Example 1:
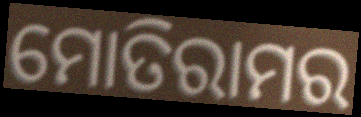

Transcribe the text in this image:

ମୋତିରାମର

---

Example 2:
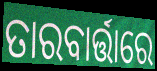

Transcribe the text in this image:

ତାରବାର୍ତ୍ତାରେ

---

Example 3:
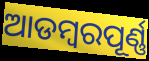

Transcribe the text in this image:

ଆଡମ୍ବରପୂର୍ଣ୍ଣ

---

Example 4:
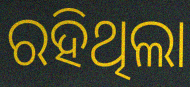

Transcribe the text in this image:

ରହିଥିଲା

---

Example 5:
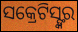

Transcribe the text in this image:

ସକ୍ରେଟିସ୍ଙ୍କର